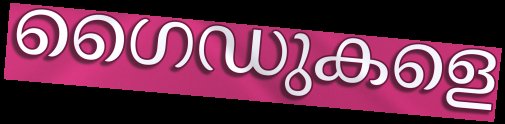
ഗൈഡുകളെ